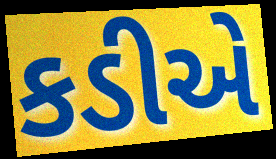
કડીએ